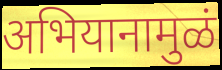
अभियानामुळं